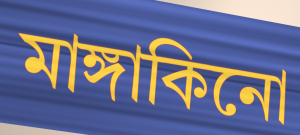
মাঙ্গাকিনো